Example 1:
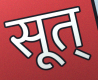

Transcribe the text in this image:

सूत्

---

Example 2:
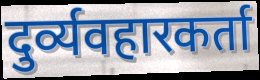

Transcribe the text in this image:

दुर्व्यवहारकर्ता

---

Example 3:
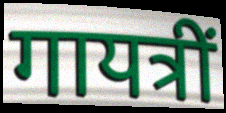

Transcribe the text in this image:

गायत्रीं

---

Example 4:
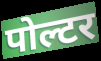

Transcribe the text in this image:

पोल्टर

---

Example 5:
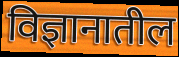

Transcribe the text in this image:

विज्ञानातील